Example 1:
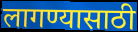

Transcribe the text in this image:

लागण्यासाठी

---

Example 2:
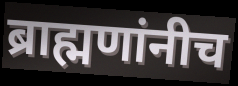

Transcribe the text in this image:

ब्राह्मणांनीच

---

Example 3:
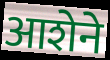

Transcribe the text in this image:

आशेने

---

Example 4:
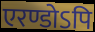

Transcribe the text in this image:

एरण्डोऽपि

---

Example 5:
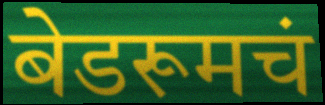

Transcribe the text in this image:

बेडरूमचं